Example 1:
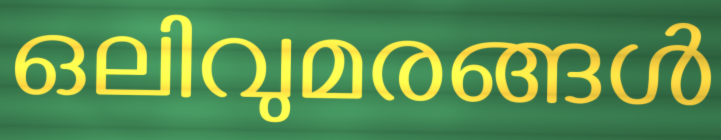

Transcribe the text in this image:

ഒലിവുമരങ്ങൾ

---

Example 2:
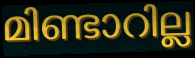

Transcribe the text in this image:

മിണ്ടാറില്ല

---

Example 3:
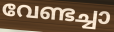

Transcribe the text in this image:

വേണ്ടച്ചാ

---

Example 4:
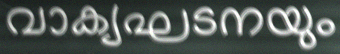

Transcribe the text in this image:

വാക്യഘടനയും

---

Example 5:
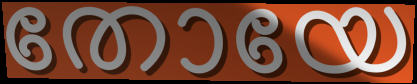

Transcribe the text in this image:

തോയേ